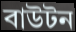
বাউটন